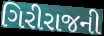
ગિરીરાજની